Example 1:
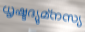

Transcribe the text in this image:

ധൃഷ്ടദ്യുമ്നസ്യ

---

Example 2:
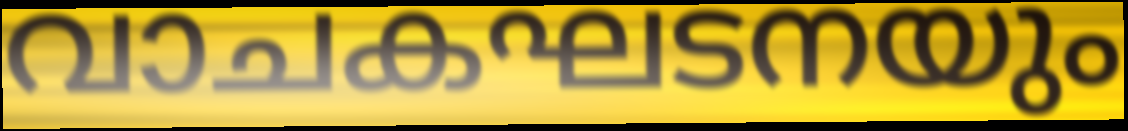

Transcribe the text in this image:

വാചകഘടനയും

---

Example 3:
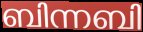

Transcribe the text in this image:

ബിന്നബി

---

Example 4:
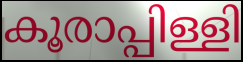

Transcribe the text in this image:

കൂരാപ്പിള്ളി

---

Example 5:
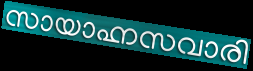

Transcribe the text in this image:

സായാഹ്നസവാരി